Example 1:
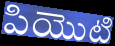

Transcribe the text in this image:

పియొటి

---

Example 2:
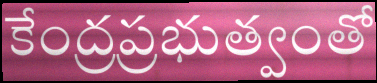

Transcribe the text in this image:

కేంద్రప్రభుత్వంతో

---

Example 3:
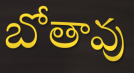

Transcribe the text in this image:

బోతావు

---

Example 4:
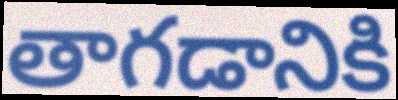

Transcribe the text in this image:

తాగడానికి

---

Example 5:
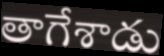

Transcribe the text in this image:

తాగేశాడు